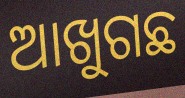
ଆଖୁଗଛ